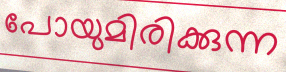
പോയുമിരിക്കുന്ന